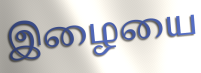
இழையை